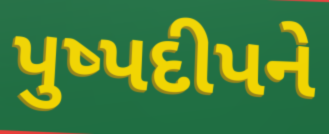
પુષ્પદીપને